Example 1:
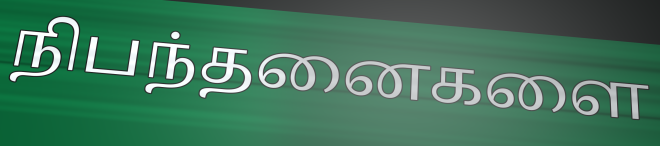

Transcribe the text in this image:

நிபந்தனைகளை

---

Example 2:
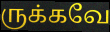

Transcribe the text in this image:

ருக்கவே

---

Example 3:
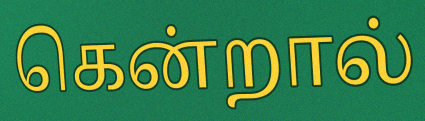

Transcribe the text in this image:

கென்றால்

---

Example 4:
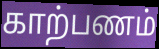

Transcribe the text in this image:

காற்பணம்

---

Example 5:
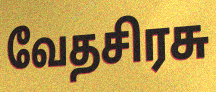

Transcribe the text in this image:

வேதசிரசு